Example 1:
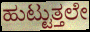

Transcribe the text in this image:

ಹುಟ್ಟುತ್ತಲೇ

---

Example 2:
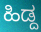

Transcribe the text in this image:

ಹಿಡ್ದ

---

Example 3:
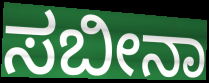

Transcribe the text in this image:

ಸಬೀನಾ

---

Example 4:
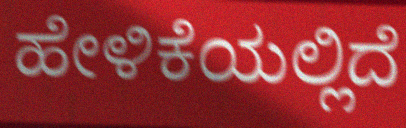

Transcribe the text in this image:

ಹೇಳಿಕೆಯಲ್ಲಿದೆ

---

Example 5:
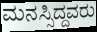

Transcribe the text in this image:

ಮನಸ್ಸಿದ್ದವರು